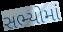
સભ્યોમાં